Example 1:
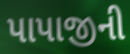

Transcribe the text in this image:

પાપાજીની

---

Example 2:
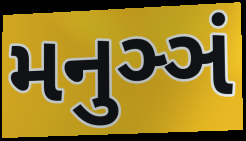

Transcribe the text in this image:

મનુઞ્ઞં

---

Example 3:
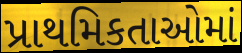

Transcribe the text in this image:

પ્રાથમિકતાઓમાં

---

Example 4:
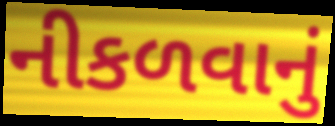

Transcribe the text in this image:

નીકળવાનું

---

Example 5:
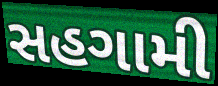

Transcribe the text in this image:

સહગામી